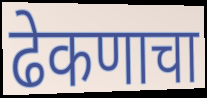
ढेकणाचा